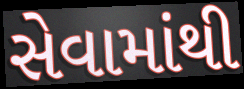
સેવામાંથી